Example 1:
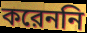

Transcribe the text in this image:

করেননি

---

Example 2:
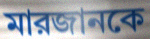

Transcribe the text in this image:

মারজানকে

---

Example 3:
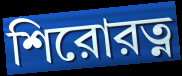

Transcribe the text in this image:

শিরোরত্ন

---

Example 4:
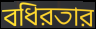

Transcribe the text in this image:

বধিরতার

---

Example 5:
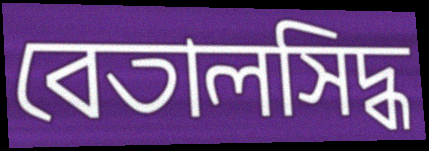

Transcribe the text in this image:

বেতালসিদ্ধ